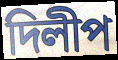
দিলীপ